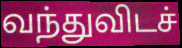
வந்துவிடச்